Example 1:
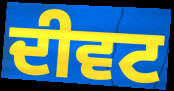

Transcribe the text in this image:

ਦੀਵਟ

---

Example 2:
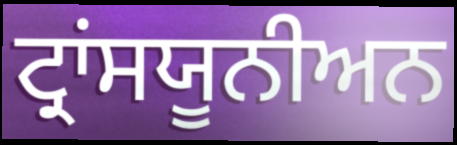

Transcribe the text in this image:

ਟ੍ਰਾਂਸਯੂਨੀਅਨ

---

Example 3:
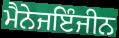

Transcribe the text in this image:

ਮੈਨੇਜਇੰਜੀਨ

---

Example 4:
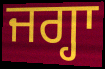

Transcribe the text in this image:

ਜਗ੍ਹਾ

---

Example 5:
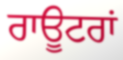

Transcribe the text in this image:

ਰਾਊਟਰਾਂ